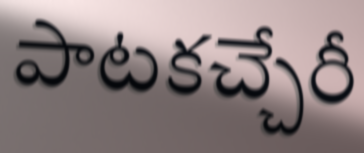
పాటకచ్చేరీ